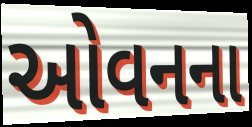
ઓવનના